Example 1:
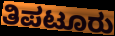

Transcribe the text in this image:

ತಿಪಟೂರು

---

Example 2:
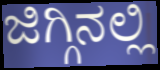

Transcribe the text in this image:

ಜಿಗ್ಗಿನಲ್ಲಿ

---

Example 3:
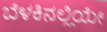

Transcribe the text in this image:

ಬೆಳಕಿನಲ್ಲಿಯೇ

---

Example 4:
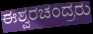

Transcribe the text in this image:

ಈಶ್ವರಚಂದ್ರರು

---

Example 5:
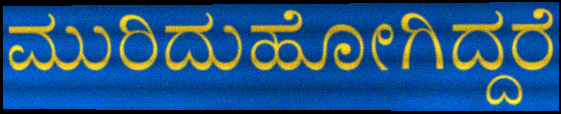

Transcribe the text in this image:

ಮುರಿದುಹೋಗಿದ್ದರೆ